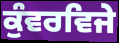
ਕੁੰਵਰਵਿਜੇ